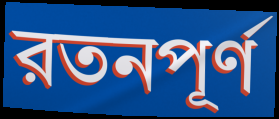
রতনপূর্ণ